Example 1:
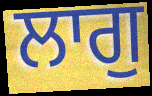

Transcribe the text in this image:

ਲਾਗੁ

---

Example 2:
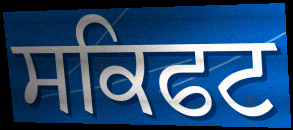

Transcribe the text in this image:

ਸਕਿਫਟ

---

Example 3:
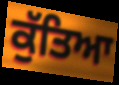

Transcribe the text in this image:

ਕੁੱਤਿਆ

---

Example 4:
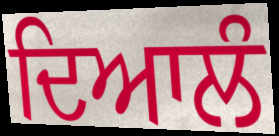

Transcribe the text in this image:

ਦਿਆਲੰ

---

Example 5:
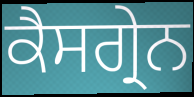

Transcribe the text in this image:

ਕੈਸਗ੍ਰੇਨ